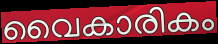
വൈകാരികം